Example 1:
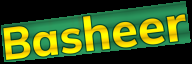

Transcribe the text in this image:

Basheer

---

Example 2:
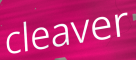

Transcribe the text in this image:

cleaver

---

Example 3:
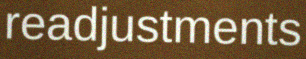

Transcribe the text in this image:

readjustments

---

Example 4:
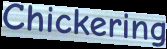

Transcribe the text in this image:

Chickering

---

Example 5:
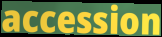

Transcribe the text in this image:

accession